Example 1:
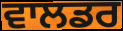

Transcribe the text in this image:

ਵਾਲਡਰ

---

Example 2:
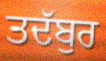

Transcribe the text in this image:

ਤਦੱਬੁਰ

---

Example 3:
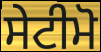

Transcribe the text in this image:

ਸੇਟੀਮੋ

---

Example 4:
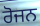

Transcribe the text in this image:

ਰੋਜਨ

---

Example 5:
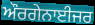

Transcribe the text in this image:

ਔਰਗੇਨਾਈਜਰ